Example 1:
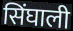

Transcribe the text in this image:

सिंघाली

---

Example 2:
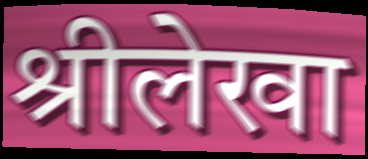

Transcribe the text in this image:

श्रीलेखा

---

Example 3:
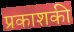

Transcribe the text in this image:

प्रकाशकी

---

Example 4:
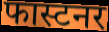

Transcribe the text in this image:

फास्टनर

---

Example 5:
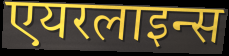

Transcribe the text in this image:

एयरलाइन्स